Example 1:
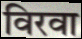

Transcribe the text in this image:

विरवा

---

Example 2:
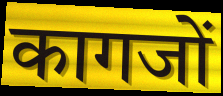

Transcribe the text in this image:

कागजों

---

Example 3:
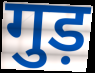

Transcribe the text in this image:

गुड़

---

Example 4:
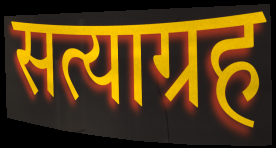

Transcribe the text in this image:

सत्याग्रह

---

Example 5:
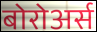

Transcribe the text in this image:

बोरोअर्स